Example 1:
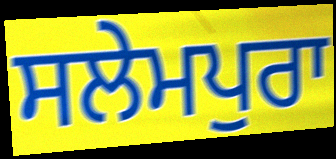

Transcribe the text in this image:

ਸਲੇਮਪੁਰਾ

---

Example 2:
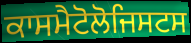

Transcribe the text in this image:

ਕਾਸਮੈਟੋਲੋਜਿਸਟਸ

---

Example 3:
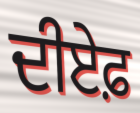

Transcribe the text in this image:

ਦੀਏਫ਼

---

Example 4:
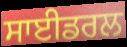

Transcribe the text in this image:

ਸਾਈਡਰਲ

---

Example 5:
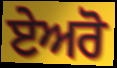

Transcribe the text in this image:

ਏਅਰੋ